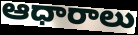
ఆధారాలు